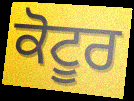
ਕੋਟੂਰ